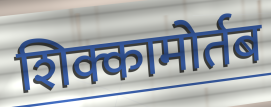
शिक्‍कामोर्तब